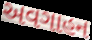
અવગાહન